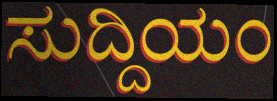
ಸುದ್ದಿಯಂ